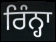
ਰਿੰਨ੍ਹਾ